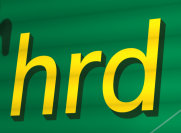
hrd